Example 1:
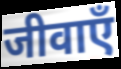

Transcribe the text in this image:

जीवाएँ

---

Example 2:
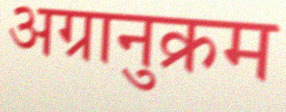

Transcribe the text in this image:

अग्रानुक्रम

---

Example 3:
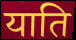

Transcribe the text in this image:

याति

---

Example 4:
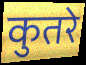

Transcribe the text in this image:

कुतरे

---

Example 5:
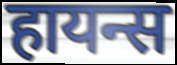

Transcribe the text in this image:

हायन्स